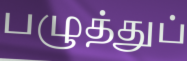
பழுத்துப்